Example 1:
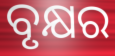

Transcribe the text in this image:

ବୃକ୍ଷର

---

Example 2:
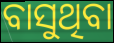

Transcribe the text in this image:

ବାସୁଥିବା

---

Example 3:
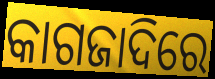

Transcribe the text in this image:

କାଗଜାଦିରେ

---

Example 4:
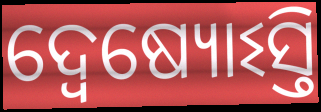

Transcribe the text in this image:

ଦ୍ୱେଷ୍ୟୋଽସ୍ତି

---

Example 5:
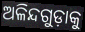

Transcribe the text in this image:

ଅଳିନ୍ଦଗୁଡ଼ାକୁ